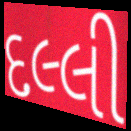
દલ્લી